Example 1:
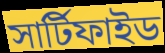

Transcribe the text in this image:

সার্টিফাইড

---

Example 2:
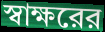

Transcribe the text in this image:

স্বাক্ষরের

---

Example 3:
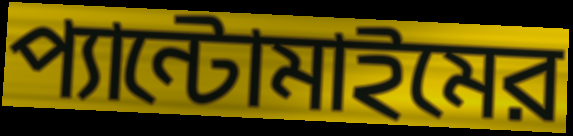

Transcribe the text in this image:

প্যান্টোমাইমের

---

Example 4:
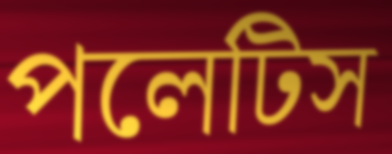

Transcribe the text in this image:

পলেটিস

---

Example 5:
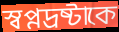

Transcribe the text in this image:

স্বপ্নদ্রষ্টাকে